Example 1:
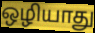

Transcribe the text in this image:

ஒழியாது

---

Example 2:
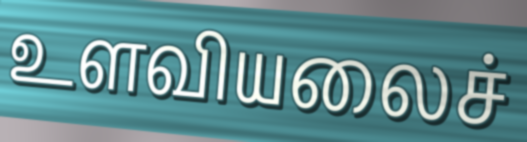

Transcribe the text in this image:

உளவியலைச்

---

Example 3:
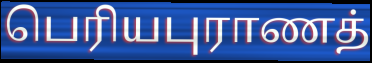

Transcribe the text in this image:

பெரியபுராணத்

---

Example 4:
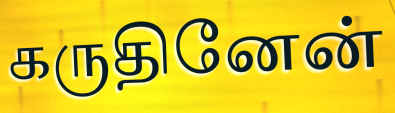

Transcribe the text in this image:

கருதினேன்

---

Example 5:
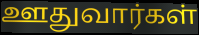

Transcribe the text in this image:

ஊதுவார்கள்